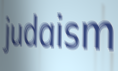
judaism